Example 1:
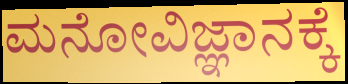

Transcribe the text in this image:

ಮನೋವಿಜ್ಞಾನಕ್ಕೆ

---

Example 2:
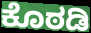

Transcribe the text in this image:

ಕೊಠಡಿ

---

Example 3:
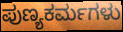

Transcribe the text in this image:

ಪುಣ್ಯಕರ್ಮಗಳು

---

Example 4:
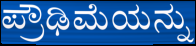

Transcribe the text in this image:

ಪ್ರೌಢಿಮೆಯನ್ನು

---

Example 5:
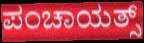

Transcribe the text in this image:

ಪಂಚಾಯತ್ಸ್